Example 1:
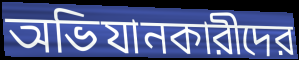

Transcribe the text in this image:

অভিযানকারীদের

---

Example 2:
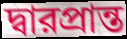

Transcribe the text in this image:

দ্বারপ্রান্ত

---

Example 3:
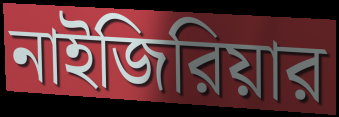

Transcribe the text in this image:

নাইজিরিয়ার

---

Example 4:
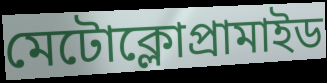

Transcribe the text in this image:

মেটোক্লোপ্রামাইড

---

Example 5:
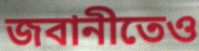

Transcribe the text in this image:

জবানীতেও